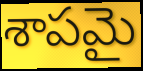
శాపమై